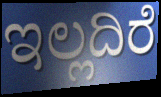
ಇಲ್ಲದಿರೆ